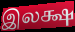
இலக்ஷ